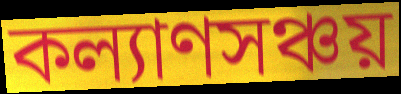
কল্যাণসঞ্চয়